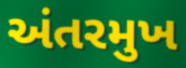
અંતરમુખ